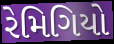
રેમિગિયો